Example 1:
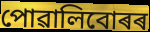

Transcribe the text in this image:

পোৱালিবোৰৰ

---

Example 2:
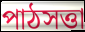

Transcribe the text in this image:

পাঠসত্তা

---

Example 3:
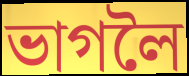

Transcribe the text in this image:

ভাগলৈ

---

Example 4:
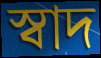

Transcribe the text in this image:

স্বাদ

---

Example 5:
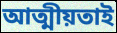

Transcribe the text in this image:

আত্মীয়তাই